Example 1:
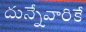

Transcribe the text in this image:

దున్నేవారికే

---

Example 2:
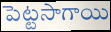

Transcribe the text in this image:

పెట్టసాగాయి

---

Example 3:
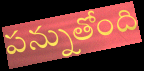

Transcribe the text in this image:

పన్నుతోంది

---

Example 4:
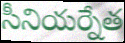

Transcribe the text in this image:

సీనియర్నేత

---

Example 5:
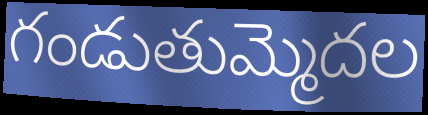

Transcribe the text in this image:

గండుతుమ్మెదల